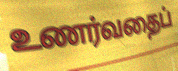
உணர்வதைப்